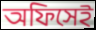
অফিসেই